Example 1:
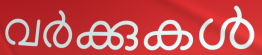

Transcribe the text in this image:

വർക്കുകൾ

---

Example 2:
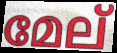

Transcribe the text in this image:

മേല്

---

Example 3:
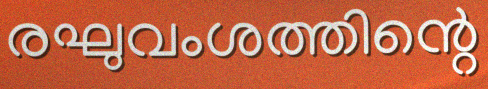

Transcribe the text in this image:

രഘുവംശത്തിന്റെ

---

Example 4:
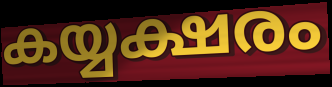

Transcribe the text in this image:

കയ്യക്ഷരം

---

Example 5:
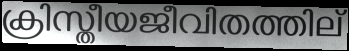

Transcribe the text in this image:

ക്രിസ്തീയജീവിതത്തില്